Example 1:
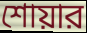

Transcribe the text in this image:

শোয়ার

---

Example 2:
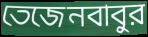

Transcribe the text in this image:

তেজেনবাবুর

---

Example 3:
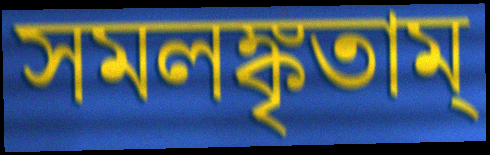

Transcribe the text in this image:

সমলঙ্কৃতাম্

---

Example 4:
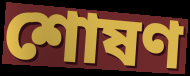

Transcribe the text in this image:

শোষণ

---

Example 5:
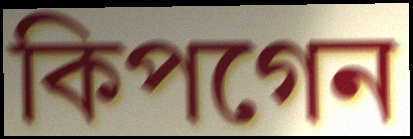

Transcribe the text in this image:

কিপগেন